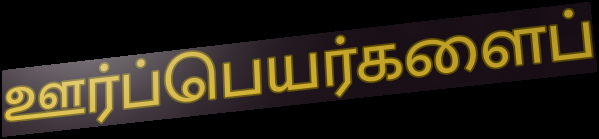
ஊர்ப்பெயர்களைப்